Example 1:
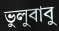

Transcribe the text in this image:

ভুলুবাবু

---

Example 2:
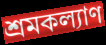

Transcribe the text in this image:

শ্রমকল্যাণ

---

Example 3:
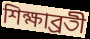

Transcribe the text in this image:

শিক্ষাব্রতী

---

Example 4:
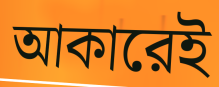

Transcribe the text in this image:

আকারেই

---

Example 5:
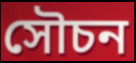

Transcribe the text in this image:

সৌচন